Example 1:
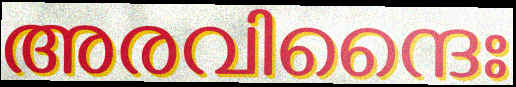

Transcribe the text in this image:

അരവിന്ദൈഃ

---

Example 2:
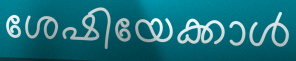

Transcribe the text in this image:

ശേഷിയേക്കാൾ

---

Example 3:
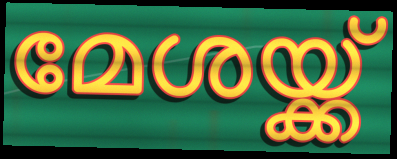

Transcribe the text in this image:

മേശയ്ക്ക്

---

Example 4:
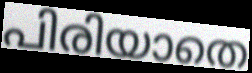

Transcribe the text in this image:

പിരിയാതെ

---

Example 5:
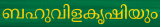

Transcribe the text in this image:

ബഹുവിളകൃഷിയും